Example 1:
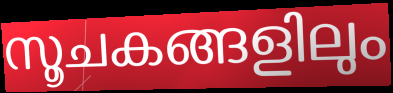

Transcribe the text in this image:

സൂചകങ്ങളിലും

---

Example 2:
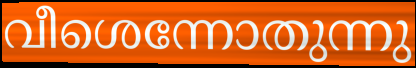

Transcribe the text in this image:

വീശെന്നോതുന്നു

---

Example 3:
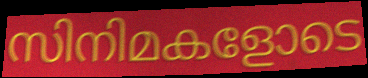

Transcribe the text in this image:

സിനിമകളോടെ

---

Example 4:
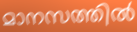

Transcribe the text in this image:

മാനസത്തിൽ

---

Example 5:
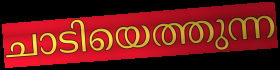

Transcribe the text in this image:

ചാടിയെത്തുന്ന